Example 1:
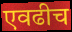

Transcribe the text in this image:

एवढीच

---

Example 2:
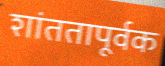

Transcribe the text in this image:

शांततापूर्वक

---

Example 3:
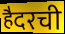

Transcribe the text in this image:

हैदरची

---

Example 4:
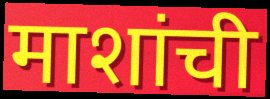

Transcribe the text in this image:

माशांची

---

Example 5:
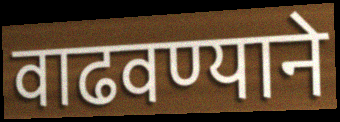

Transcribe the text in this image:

वाढवण्याने